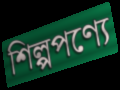
শিল্পপণ্যে